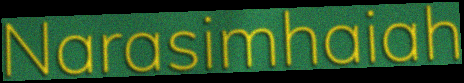
Narasimhaiah